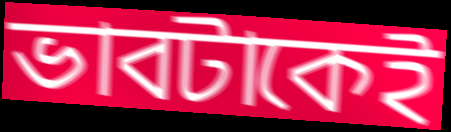
ভাবটাকেই